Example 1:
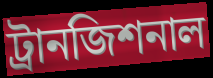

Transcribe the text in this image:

ট্রানজিশনাল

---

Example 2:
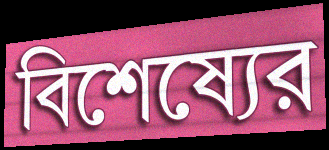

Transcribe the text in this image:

বিশেষ্যের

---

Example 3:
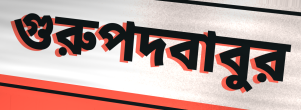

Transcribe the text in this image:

গুরুপদবাবুর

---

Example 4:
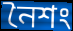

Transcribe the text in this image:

নৈশং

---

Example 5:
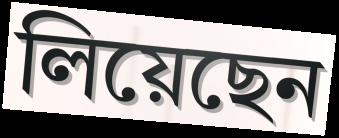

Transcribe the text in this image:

লিয়েছেন